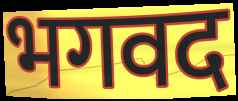
भगवद